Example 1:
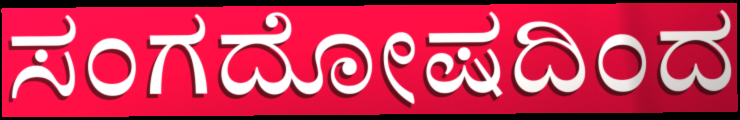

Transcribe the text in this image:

ಸಂಗದೋಷದಿಂದ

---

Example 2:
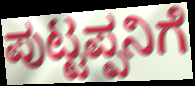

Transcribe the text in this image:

ಪುಟ್ಟಪ್ಪನಿಗೆ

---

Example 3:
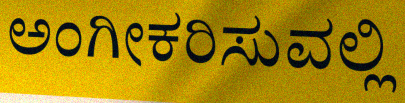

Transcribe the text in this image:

ಅಂಗೀಕರಿಸುವಲ್ಲಿ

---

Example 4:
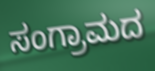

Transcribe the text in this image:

ಸಂಗ್ರಾಮದ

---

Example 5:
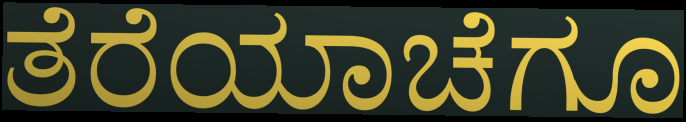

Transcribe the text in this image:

ತೆರೆಯಾಚೆಗೂ